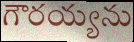
గౌరయ్యను